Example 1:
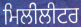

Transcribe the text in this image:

ਮਿਲੀਲੀਟਰ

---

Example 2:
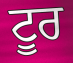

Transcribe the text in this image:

ਟੂਰ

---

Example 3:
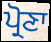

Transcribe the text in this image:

ਪ੍ਰੋਣਾ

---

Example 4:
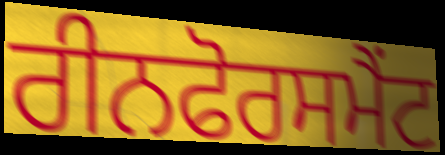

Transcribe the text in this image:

ਰੀਨਫੋਰਸਮੈਂਟ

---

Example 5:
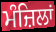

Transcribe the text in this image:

ਮੰਜ਼ਿਲਾਂ